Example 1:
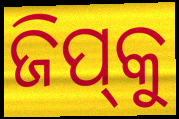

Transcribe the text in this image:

ଜିପ୍‌କୁ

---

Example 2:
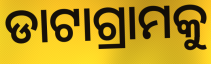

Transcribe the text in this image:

ଡାଟାଗ୍ରାମକୁ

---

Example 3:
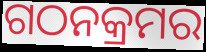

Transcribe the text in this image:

ଗଠନକ୍ରମର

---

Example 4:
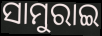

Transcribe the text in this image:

ସାମୁରାଇ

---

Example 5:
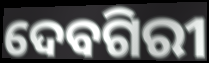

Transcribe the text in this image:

ଦେବଗିରୀ